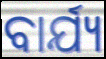
ବାର୍ଯ୍ୟ